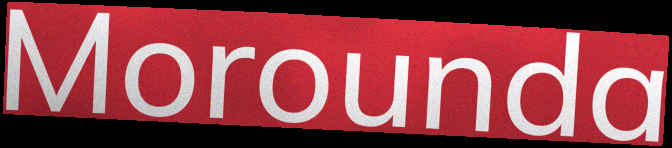
Morounda